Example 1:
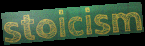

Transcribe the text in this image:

stoicism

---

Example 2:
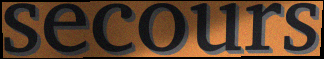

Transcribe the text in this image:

secours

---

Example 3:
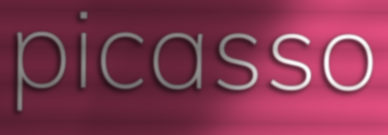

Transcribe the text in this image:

picasso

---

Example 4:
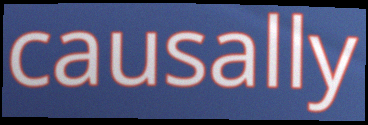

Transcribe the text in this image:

causally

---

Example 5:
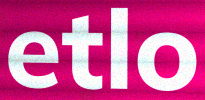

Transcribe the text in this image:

etlo